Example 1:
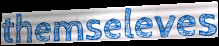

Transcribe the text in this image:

themseleves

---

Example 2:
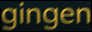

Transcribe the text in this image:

gingen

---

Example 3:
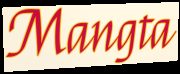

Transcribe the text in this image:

Mangta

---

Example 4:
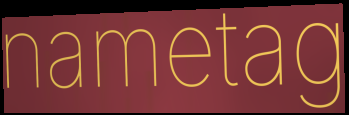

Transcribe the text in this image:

nametag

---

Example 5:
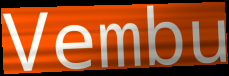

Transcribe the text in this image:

Vembu